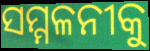
ସମ୍ମଳନୀକୁ